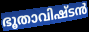
ഭൂതാവിഷ്ടൻ